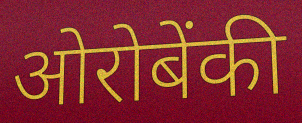
ओरोबेंकी